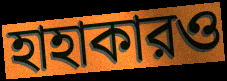
হাহাকারও